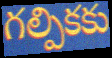
గల్పికకు